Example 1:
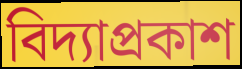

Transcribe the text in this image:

বিদ্যাপ্রকাশ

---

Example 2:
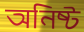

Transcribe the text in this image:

অনিষ্ট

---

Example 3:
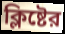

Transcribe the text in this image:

ক্লিষ্টের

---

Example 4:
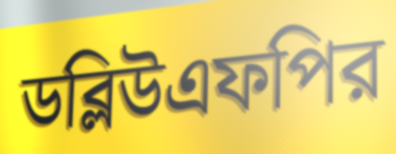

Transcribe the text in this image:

ডব্লিউএফপির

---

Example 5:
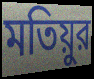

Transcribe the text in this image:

মতিয়ুর